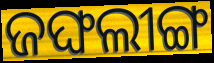
ଜଙ୍ଘଲୀଙ୍ଗ